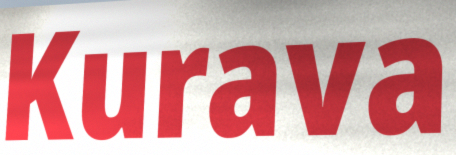
Kurava